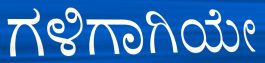
ಗಳಿಗಾಗಿಯೇ